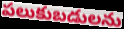
పలుకుబడులను